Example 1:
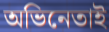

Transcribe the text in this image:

অভিনেতাই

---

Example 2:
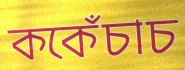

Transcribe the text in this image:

ককেঁচাচ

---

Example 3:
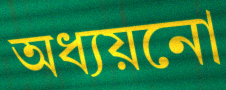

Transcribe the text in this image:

অধ্যয়নো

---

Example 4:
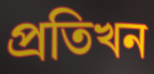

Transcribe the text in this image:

প্ৰতিখন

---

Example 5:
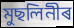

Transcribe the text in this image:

মুছলিনীৰ